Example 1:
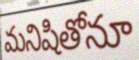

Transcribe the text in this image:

మనిషితోనూ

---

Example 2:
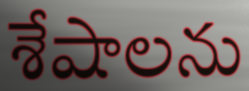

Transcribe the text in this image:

శేషాలను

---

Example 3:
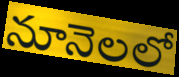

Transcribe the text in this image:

నూనెలలో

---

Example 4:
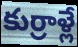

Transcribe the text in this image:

కుర్రాళ్లే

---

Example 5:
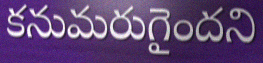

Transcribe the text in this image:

కనుమరుగైందని